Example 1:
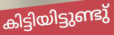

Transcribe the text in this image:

കിട്ടിയിട്ടുണ്ടു്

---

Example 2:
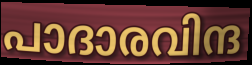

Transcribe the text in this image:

പാദാരവിന്ദ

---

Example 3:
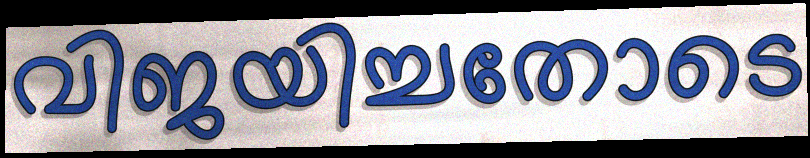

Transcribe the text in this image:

വിജയിച്ചതോടെ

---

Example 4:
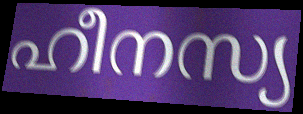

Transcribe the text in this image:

ഹീനസ്യ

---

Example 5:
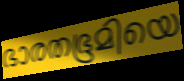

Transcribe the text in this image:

ഭാരതഭൂമിയെ